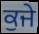
ਕੁਜੇ